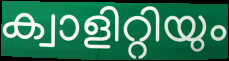
ക്വാളിറ്റിയും